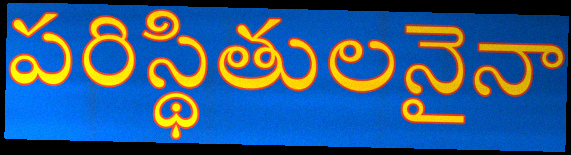
పరిస్థితులనైనా